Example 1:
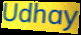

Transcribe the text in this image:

Udhay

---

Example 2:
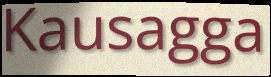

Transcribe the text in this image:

Kausagga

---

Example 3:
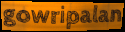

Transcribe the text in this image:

gowripalan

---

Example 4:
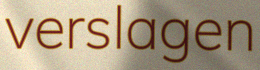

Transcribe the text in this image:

verslagen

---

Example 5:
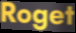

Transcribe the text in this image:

Roget